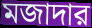
মজাদার